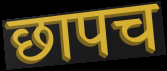
छापच